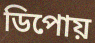
ডিপোয়